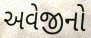
અવેજીનો